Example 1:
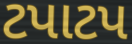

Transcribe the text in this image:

ટપાટપ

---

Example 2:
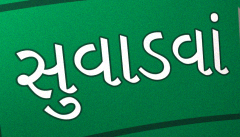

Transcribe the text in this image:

સુવાડવાં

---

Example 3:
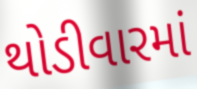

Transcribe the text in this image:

થોડીવારમાં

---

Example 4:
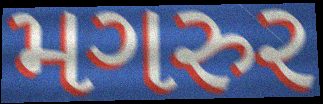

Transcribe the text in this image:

મગરુર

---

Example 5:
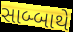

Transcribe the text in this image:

સાબ્બાથે